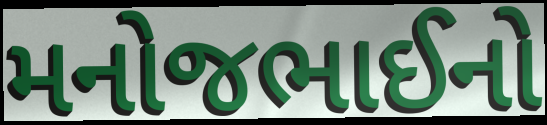
મનોજભાઈનો